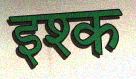
इश्क